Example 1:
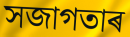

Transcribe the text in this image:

সজাগতাৰ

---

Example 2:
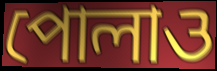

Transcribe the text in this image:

পোলাও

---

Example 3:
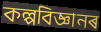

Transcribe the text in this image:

কল্পবিজ্ঞানৰ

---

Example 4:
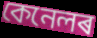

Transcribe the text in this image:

কেনেলৰ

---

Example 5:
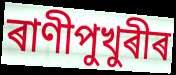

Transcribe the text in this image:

ৰাণীপুখুৰীৰ